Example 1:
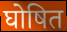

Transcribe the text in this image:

घोषित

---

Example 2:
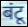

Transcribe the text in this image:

बंटू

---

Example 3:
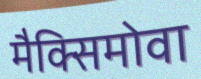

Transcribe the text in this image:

मैक्सिमोवा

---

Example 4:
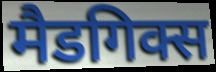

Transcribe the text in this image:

मैडगिक्स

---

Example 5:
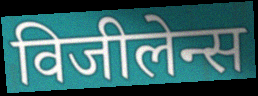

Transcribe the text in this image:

विजीलेन्स